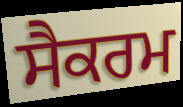
ਸੈਕਰਮ